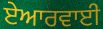
ਏਆਰਵਾਈ